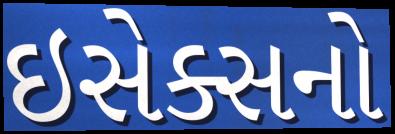
ઇસેક્સનો